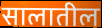
सालातील